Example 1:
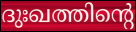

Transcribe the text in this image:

ദുഃഖത്തിന്റെ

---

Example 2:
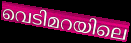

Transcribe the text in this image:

വെടിമറയിലെ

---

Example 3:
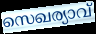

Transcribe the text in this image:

സെഖര്യാവ്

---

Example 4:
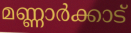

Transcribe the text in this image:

മണ്ണാർക്കാട്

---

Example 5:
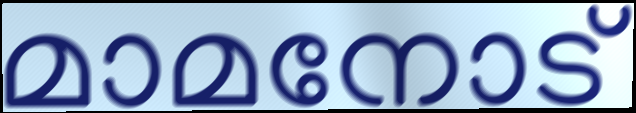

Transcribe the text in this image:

മാമനോട്